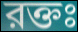
রক্তঃ